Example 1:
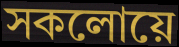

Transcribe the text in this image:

সকলোয়ে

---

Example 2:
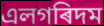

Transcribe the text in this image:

এলগৰিদম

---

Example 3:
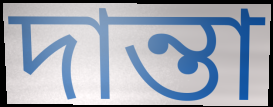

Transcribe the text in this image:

দান্তা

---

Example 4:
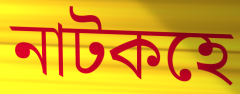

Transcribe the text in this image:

নাটকহে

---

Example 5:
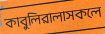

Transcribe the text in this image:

কাবুলিৱালাসকলে